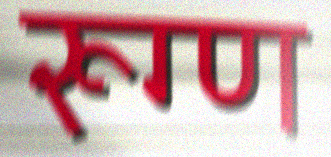
रूग्ण